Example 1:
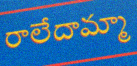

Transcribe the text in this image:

రాలేదామ్మా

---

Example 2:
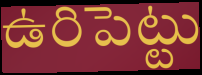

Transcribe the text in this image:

ఉరిపెట్టు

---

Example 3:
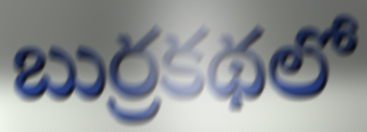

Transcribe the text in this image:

బుర్రకథలో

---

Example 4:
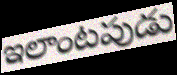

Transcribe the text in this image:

ఇలాంటపుడు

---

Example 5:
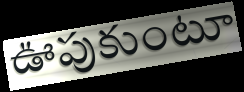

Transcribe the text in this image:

ఊపుకుంటూ